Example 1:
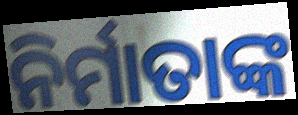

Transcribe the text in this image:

ନିର୍ମାତାଙ୍କ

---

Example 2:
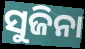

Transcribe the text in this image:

ସୁଜିନା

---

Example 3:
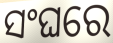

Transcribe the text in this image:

ସଂଘରେ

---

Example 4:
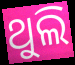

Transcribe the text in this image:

ଥୁଲି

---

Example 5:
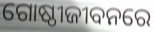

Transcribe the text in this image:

ଗୋଷ୍ଠୀଜୀବନରେ